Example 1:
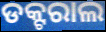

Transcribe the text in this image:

ଡକ୍ଟରାଲ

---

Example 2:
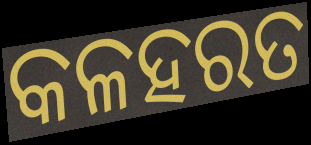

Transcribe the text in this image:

କଳହରତ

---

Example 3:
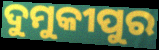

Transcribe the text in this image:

ଦୁମୁକୀପୁର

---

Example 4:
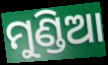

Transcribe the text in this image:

ମୁଣ୍ଡିଆ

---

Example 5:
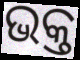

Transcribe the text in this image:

ଭକ୍ତ